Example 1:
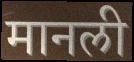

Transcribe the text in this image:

मानली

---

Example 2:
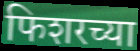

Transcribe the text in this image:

फिशरच्या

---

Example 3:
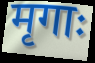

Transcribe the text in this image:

मृगाः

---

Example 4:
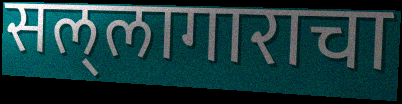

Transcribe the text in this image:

सल्लागाराचा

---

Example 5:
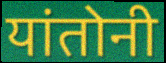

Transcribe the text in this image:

यांतोनी